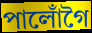
পালোঁগৈ